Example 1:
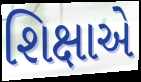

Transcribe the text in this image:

શિક્ષાએ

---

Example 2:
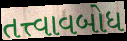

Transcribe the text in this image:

તત્ત્વાવબોધ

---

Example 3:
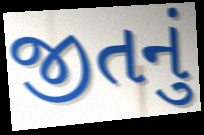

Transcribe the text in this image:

જીતનું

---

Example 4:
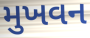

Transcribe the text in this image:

મુખવન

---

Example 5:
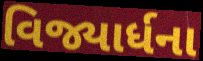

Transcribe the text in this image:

વિજ્યાર્ધના